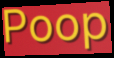
Poop